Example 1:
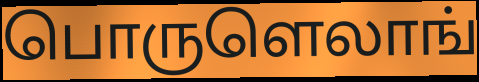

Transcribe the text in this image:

பொருளெலாங்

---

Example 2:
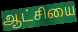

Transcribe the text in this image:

ஆட்சியை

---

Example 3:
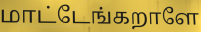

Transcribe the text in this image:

மாட்டேங்கறாளே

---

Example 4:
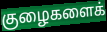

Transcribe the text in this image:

குழைகளைக்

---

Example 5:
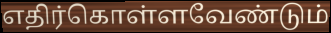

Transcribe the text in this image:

எதிர்கொள்ளவேண்டும்